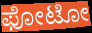
ಫೋಟೋ